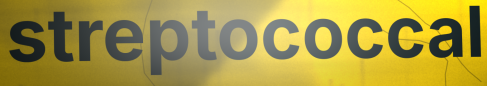
streptococcal